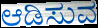
ಆಡಿಸುವ